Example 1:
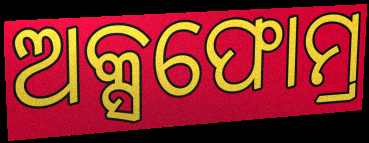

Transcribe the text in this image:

ଅକ୍ସଫୋମ୍ର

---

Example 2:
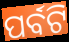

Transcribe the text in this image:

ପର୍ବଟି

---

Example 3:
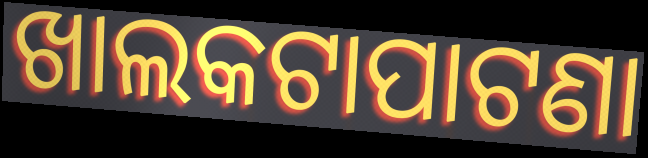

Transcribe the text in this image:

ଖାଲକଟାପାଟଣା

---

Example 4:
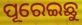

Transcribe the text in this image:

ପୂରେଇଛୁ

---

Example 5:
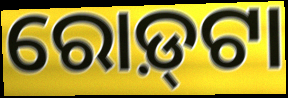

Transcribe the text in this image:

ରୋଡ଼୍‌ଟା